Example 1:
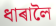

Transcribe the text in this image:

ধাৰালৈ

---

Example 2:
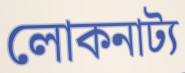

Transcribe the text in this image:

লোকনাট্য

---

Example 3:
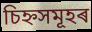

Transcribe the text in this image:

চিহ্নসমূহৰ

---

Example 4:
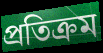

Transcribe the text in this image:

প্ৰতিক্ৰম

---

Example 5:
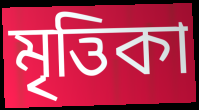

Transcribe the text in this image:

মৃত্তিকা